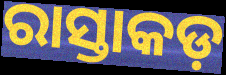
ରାସ୍ତାକଡ଼